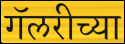
गॅलरीच्या